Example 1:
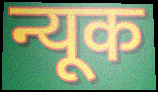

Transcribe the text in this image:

न्यूक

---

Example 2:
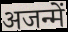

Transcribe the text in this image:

अजन्में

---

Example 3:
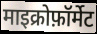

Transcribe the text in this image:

माइक्रोफ़ॉर्मेट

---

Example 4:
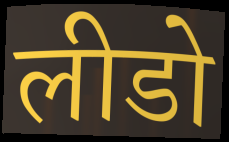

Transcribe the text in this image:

लीडो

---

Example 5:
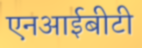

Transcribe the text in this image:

एनआईबीटी